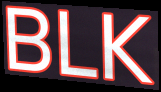
BLK